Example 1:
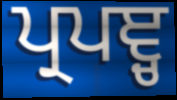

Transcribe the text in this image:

ਪ੍ਰਪਞ੍ਚ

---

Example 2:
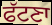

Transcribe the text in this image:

ਫੱਟਣਾ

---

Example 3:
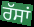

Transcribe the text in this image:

ਰੱਸਾਂ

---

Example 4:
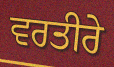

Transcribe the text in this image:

ਵਰਤੀਰੇ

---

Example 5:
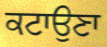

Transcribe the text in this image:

ਕਟਾਉਣਾ